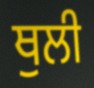
ਥੁਲੀ